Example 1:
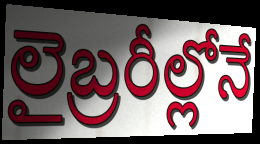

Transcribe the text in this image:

లైబ్రరీల్లోనే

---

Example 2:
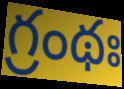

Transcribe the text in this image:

గ్రంథః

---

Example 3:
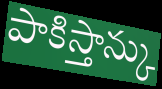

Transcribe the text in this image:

పాకిస్తాన్కు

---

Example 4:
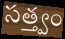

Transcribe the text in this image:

సత్త్వం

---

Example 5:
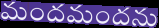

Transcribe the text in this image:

మందమందను